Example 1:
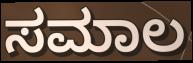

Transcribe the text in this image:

ಸಮಾಲ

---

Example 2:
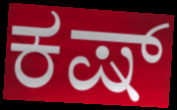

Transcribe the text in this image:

ಕಷ್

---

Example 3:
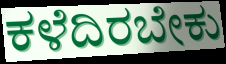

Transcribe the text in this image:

ಕಳೆದಿರಬೇಕು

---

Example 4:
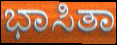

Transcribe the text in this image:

ಭಾಸಿತಾ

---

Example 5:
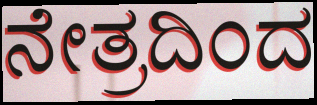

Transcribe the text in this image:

ನೇತ್ರದಿಂದ